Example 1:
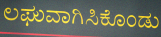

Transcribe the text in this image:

ಲಘುವಾಗಿಸಿಕೊಂಡು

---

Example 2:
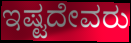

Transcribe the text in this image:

ಇಷ್ಟದೇವರು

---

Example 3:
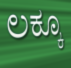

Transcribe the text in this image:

ಲಕ್ಕೂ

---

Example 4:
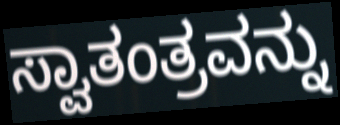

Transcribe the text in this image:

ಸ್ವಾತಂತ್ರವನ್ನು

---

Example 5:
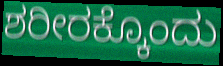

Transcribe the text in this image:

ಶರೀರಕ್ಕೊಂದು